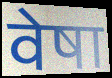
वेषा